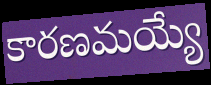
కారణమయ్యే